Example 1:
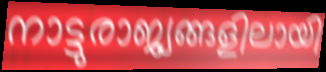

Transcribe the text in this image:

നാട്ടുരാജ്യങ്ങളിലായി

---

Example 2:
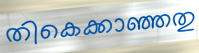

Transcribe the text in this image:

തികെക്കാഞ്ഞതു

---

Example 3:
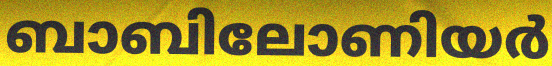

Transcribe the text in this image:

ബാബിലോണിയർ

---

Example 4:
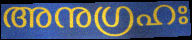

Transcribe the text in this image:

അനുഗ്രഹഃ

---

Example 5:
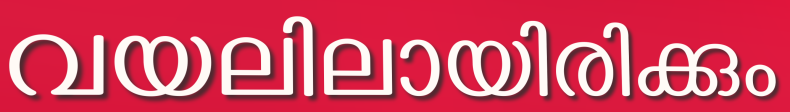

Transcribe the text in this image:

വയലിലായിരിക്കും